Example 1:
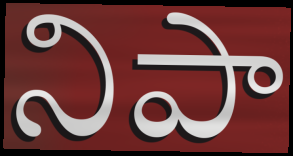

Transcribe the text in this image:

నిపా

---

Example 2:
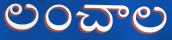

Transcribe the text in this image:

లంచాల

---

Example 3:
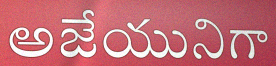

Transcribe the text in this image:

అజేయునిగా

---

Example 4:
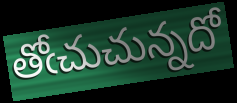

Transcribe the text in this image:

తోఁచుచున్నదో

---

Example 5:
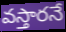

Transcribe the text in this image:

వస్తారనే